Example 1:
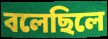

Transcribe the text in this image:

বলেছিলে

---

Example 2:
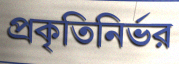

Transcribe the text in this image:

প্রকৃতিনির্ভর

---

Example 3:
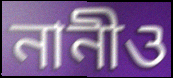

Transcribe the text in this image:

নানীও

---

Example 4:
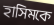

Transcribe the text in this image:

হাসিমকে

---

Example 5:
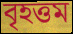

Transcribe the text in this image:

বৃহত্তম